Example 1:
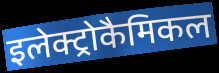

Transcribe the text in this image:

इलेक्ट्रोकैमिकल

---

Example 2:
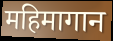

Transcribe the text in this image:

महिमागान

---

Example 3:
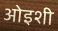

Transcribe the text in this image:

ओइशी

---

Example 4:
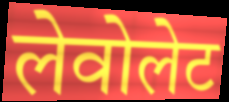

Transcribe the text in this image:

लेवोलेट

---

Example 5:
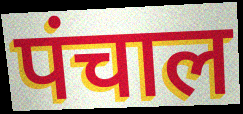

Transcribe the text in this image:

पंचाल